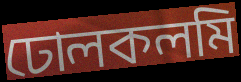
ঢোলকলমি